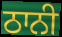
ਠਾਨੀ